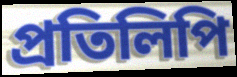
প্ৰতিলিপি